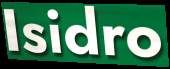
Isidro